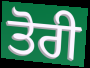
ਤੋਰੀ